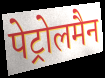
पेट्रोलमैन